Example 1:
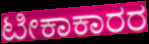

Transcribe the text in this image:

ಟೀಕಾಕಾರರ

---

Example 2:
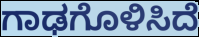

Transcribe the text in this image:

ಗಾಢಗೊಳಿಸಿದೆ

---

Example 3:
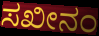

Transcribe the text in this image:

ಸಖೀನಂ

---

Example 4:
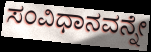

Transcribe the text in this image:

ಸಂವಿಧಾನವನ್ನೇ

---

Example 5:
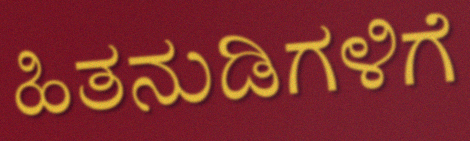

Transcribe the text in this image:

ಹಿತನುಡಿಗಳಿಗೆ